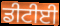
ਡੀਟੀਈ